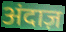
अंदाज़